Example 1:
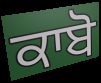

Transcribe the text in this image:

ਕਾਬੋ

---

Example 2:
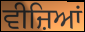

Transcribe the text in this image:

ਵੀਜ਼ਿਆਂ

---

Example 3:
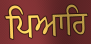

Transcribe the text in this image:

ਪਿਆਰਿ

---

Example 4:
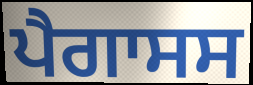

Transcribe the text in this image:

ਪੈਗਾਸਸ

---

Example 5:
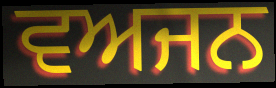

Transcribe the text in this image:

ਵਅਜਨ